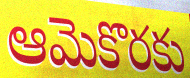
ఆమెకొరకు